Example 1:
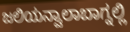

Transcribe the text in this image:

ಜಲಿಯನ್ವಾಲಾಬಾಗ್ನಲ್ಲಿ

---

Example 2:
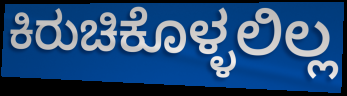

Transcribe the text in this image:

ಕಿರುಚಿಕೊಳ್ಳಲಿಲ್ಲ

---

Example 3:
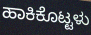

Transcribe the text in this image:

ಹಾಕಿಕೊಟ್ಟಳು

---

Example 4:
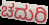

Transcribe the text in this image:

ಚದುರಿ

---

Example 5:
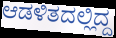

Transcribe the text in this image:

ಆಡಳಿತದಲ್ಲಿದ್ದ